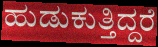
ಹುಡುಕುತ್ತಿದ್ದರೆ